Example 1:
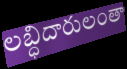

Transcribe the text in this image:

లబ్ధిదారులంతా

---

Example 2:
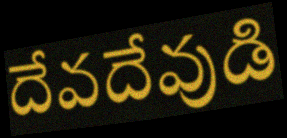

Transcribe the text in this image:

దేవదేవుడి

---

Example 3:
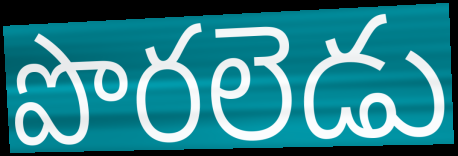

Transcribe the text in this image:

పొరలెడు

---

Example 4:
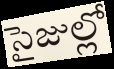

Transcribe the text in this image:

సైజుల్లో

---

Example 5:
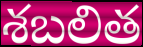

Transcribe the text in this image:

శబలిత